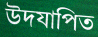
উদযাপিত